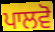
ਪਾਲਵੋ